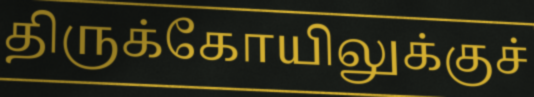
திருக்கோயிலுக்குச்